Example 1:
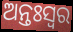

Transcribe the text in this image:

ଅନ୍ତଃସ୍ଵର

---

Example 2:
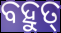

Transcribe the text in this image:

ବହୁତ୍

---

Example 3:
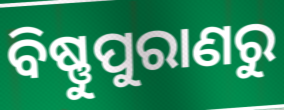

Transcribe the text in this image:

ବିଷ୍ଣୁପୁରାଣରୁ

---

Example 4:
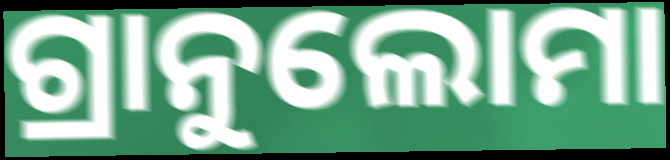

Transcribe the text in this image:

ଗ୍ରାନୁଲୋମା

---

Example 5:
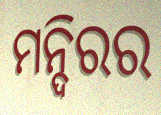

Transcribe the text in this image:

ମନ୍ଦିରର